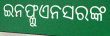
ଇନଫ୍ଳୁଏନସରଙ୍କ